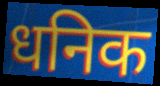
धनिक